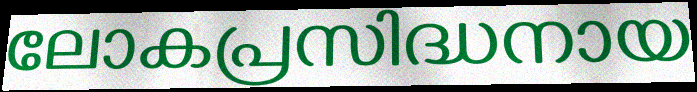
ലോകപ്രസിദ്ധനായ